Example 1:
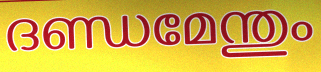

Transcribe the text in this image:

ദണ്ഡമേന്തും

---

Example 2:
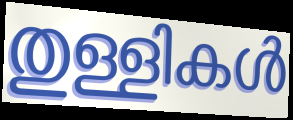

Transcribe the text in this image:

തുള്ളികൾ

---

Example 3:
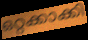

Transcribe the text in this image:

ഒറ്റക്കാക്കി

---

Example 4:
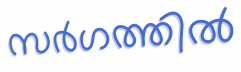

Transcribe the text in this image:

സർഗത്തിൽ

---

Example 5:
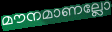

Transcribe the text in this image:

മൗനമാണല്ലോ